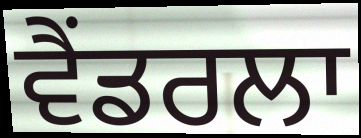
ਵੈਂਡਰਲਾ